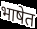
भाषेत